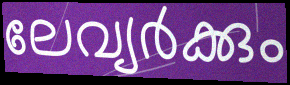
ലേവ്യർക്കും